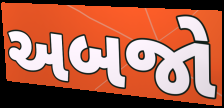
અબજો